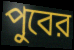
পুবের